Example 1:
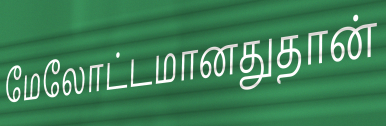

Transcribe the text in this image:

மேலோட்டமானதுதான்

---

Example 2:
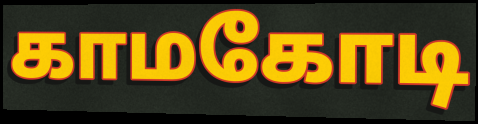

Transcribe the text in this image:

காமகோடி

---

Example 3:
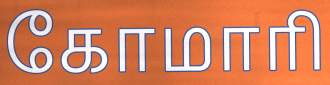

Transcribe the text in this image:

கோமாரி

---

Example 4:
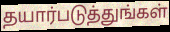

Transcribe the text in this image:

தயார்படுத்துங்கள்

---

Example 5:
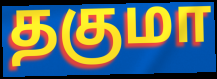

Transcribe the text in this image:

தகுமா